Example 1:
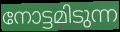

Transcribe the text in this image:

നോട്ടമിടുന്ന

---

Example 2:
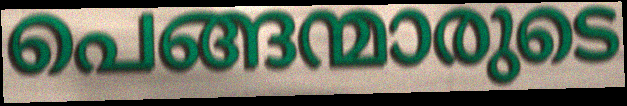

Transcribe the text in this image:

പെങ്ങന്മാരുടെ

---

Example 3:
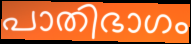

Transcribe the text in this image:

പാതിഭാഗം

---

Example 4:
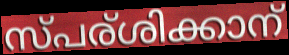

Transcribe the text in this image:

സ്പര്ശിക്കാന്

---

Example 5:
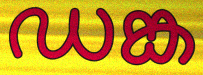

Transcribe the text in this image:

ഡങ്ക